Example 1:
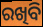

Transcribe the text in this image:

ରଖିବି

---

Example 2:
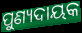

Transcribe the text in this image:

ପୁଣ୍ୟଦାୟକ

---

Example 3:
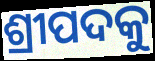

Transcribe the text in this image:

ଶ୍ରୀପଦକୁ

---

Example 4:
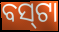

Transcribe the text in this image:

ବସ୍‍ଟା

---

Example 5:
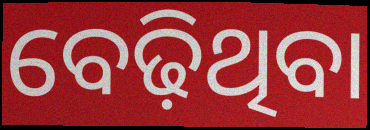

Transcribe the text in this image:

ବେଢ଼ିଥିବା